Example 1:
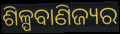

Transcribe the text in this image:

ଶିଳ୍ପବାଣିଜ୍ୟର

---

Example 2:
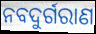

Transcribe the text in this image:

ନବଦୁର୍ଗରାଣ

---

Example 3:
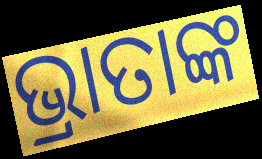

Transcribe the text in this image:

ଭ୍ରାତାଙ୍କ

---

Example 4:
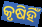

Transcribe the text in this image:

କୃଷିହିଁ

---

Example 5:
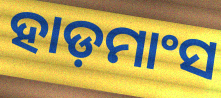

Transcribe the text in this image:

ହାଡ଼ମାଂସ